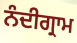
ਨੰਦੀਗ੍ਰਾਮ